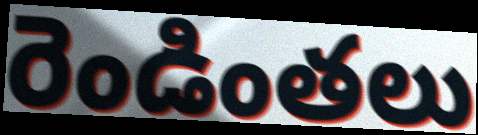
రెండింతలు